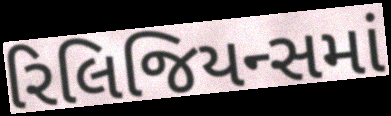
રિલિજિયન્સમાં